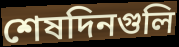
শেষদিনগুলি